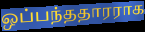
ஒப்பந்ததாரராக